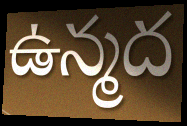
ఉన్మద